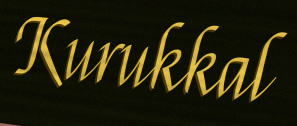
Kurukkal